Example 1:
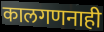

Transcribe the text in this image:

कालगणनाही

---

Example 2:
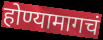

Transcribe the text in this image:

होण्यामागचं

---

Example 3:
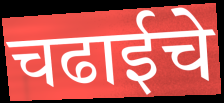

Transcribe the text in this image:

चढाईचे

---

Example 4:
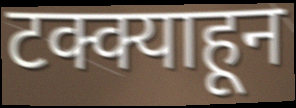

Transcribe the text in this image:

टक्क्याहून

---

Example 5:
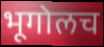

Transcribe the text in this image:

भूगोलच